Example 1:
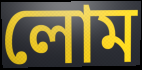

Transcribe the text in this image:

লোম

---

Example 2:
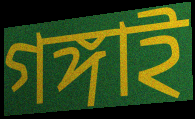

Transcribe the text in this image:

গঙ্গাই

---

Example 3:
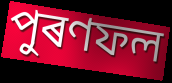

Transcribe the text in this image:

পুৰণফল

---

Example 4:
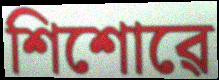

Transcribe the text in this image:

শিশোৱে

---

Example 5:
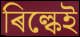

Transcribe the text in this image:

ৰিল্কেই